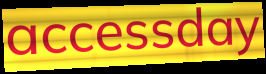
accessday